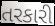
તરકારી